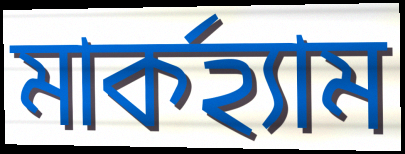
মার্কহ্যাম